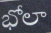
భోలా